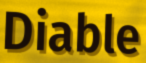
Diable